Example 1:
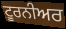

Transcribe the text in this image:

ਟੂਰਨੀਅਰ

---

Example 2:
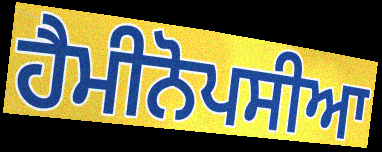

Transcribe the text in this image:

ਹੈਮੀਨੋਪਸੀਆ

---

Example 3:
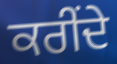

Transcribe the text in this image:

ਕਰੀਂਦੇ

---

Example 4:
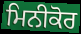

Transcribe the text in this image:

ਮਿਨੀਕੋਰ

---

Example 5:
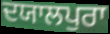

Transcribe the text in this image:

ਦਯਾਲਪੁਰਾ